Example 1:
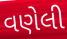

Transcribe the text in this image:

વણેલી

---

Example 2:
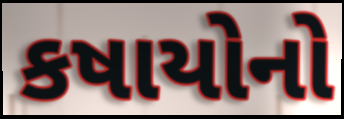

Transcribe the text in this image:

કષાયોનો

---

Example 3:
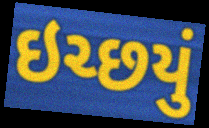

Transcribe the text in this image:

ઇચ્છયું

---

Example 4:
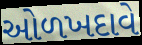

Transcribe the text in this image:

ઓળખદાવે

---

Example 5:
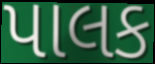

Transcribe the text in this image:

પાલક